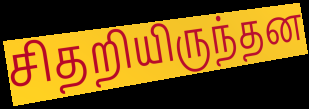
சிதறியிருந்தன